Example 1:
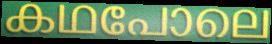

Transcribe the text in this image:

കഥപോലെ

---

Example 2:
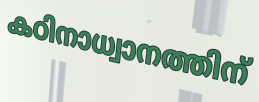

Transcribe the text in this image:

കഠിനാധ്വാനത്തിന്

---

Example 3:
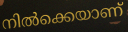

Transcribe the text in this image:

നിൽക്കെയാണ്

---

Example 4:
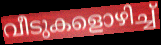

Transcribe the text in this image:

വീടുകളൊഴിച്ച്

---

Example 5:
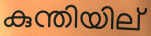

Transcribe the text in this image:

കുന്തിയില്